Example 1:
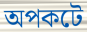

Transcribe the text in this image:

অপকটে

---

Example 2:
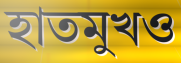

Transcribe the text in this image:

হাতমুখও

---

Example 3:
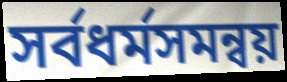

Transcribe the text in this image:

সর্বধর্মসমন্বয়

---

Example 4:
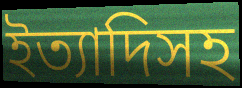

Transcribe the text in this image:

ইত্যাদিসহ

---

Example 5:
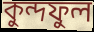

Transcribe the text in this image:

কুন্দফুল